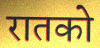
रातको